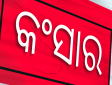
କଂସାର